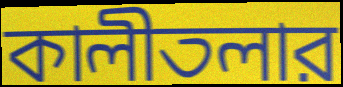
কালীতলার